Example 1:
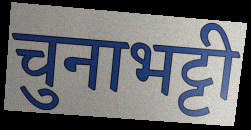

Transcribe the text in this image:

चुनाभट्टी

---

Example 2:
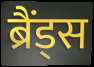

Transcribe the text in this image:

ब्रैंड्स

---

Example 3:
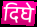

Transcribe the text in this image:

दिघे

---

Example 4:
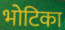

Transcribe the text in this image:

भोटिका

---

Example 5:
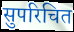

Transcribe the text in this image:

सुपरिचित